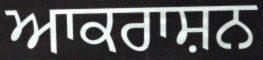
ਆਕਰਾਸ਼ਨ